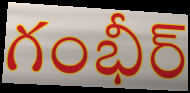
గంభీర్